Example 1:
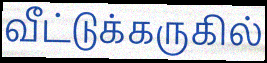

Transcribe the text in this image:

வீட்டுக்கருகில்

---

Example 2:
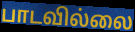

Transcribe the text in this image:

பாடவில்லை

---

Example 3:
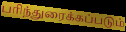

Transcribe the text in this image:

பரிந்துரைக்கப்படும்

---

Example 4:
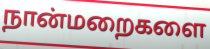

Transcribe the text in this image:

நான்மறைகளை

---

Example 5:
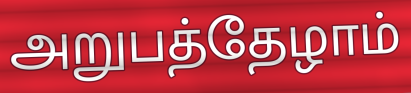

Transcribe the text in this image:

அறுபத்தேழாம்